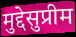
मुद्देसुप्रीम